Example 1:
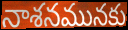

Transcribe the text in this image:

నాశనమునకు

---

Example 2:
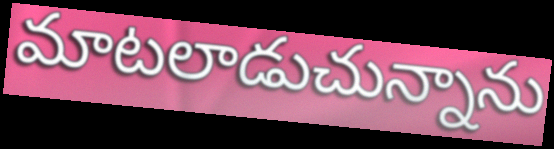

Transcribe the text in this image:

మాటలాడుచున్నాను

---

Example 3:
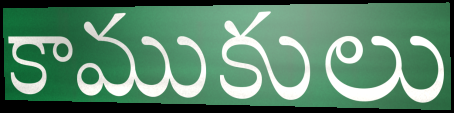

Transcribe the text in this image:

కాముకులు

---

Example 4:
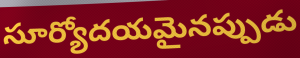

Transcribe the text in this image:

సూర్యోదయమైనప్పుడు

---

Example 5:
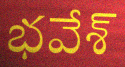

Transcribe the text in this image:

భవేశ్